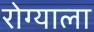
रोग्याला